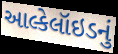
આલ્કેલૉઇડનું